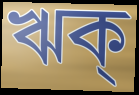
ঋক্